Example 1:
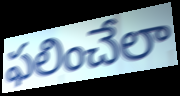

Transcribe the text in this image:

ఫలించేలా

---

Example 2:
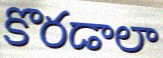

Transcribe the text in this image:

కొరడాలా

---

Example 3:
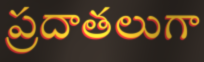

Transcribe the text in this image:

ప్రదాతలుగా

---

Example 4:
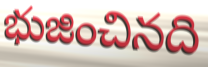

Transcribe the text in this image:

భుజించినది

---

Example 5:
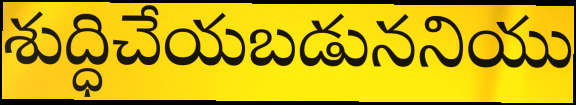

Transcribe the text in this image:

శుద్ధిచేయబడుననియు